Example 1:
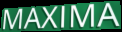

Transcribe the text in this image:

MAXIMA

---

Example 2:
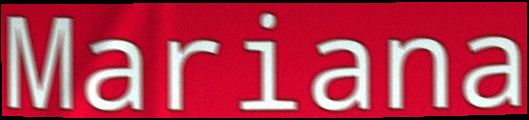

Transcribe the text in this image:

Mariana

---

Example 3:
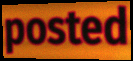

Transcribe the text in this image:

posted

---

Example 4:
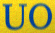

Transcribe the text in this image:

UO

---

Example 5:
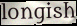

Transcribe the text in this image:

longish